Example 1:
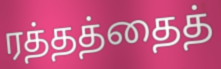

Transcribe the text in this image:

ரத்தத்தைத்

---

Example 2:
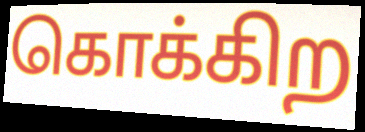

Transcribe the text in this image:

கொக்கிற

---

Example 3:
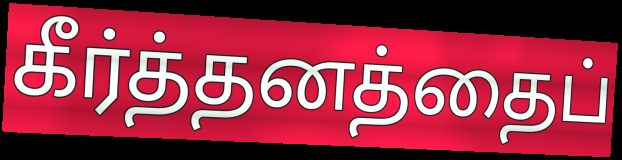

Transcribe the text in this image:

கீர்த்தனத்தைப்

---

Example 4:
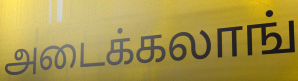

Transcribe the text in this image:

அடைக்கலாங்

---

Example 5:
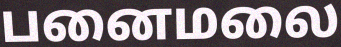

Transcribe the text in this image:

பனைமலை